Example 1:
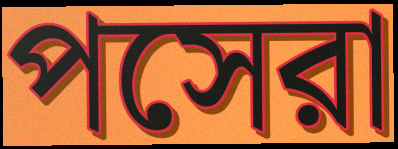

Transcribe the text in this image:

পসেরা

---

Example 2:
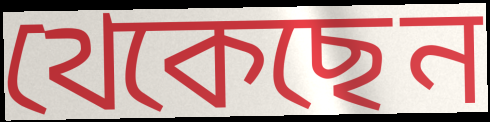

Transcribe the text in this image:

থেকেছেন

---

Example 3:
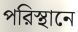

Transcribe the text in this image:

পরিস্থানে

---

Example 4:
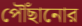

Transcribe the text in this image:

পৌঁছানোর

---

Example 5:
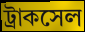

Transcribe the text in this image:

ট্রাকসেল